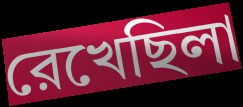
রেখেছিলা